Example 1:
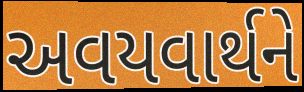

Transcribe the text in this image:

અવયવાર્થને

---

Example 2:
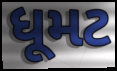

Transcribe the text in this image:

ધૂમટ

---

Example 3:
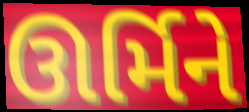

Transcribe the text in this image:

ઊર્મિને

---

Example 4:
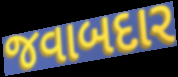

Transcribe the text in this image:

જવાબદાર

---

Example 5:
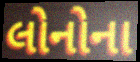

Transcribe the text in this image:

લોનોના